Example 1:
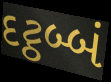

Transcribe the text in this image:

દટ્ઠબ્બં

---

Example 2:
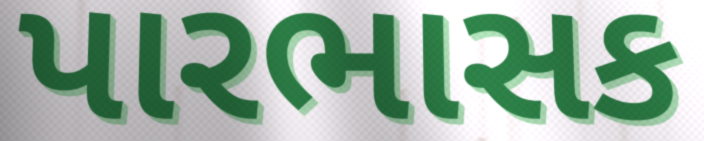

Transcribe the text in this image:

પારભાસક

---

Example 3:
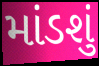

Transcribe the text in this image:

માંડશું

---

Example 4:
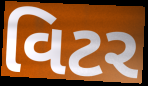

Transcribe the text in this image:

વિટર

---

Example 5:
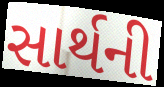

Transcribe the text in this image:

સાર્થની